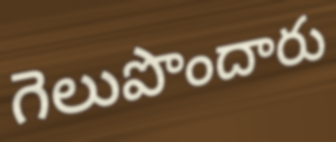
గెలుపొందారు